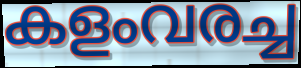
കളംവരച്ച